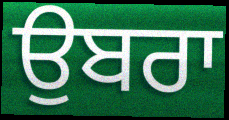
ਉਬਰਾ